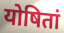
योषितां